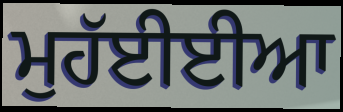
ਮੁਹੱਈਈਆ